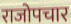
राजोपचार